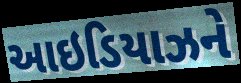
આઇડિયાઝને